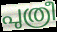
പുത്രീ